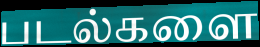
படல்களை